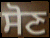
ਸੋਣ